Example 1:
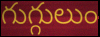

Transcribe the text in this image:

గుగ్గులుం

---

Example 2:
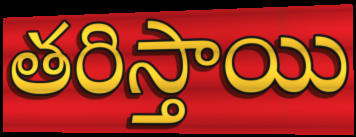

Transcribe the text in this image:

తరిస్తాయి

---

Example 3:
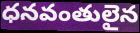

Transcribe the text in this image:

ధనవంతులైన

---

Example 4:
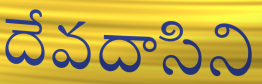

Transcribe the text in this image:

దేవదాసిని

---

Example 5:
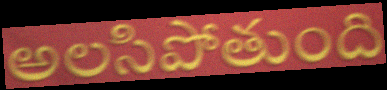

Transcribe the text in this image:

అలసిపోతుంది